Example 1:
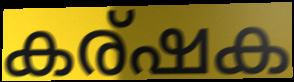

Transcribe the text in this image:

കര്ഷക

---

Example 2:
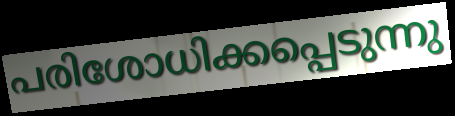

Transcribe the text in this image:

പരിശോധിക്കപ്പെടുന്നു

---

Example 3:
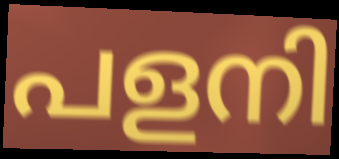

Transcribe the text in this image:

പളനി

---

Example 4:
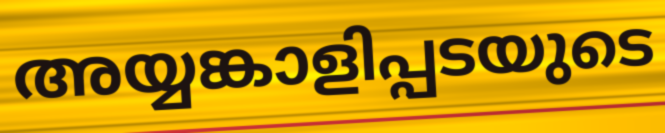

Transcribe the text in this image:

അയ്യങ്കാളിപ്പടയുടെ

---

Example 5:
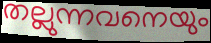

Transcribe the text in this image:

തല്ലുന്നവനെയും